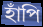
হাঁপি